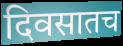
दिवसातच